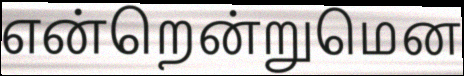
என்றென்றுமென